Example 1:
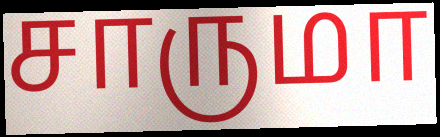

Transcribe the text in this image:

சாருமா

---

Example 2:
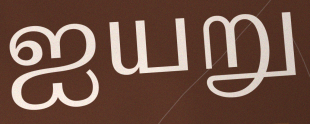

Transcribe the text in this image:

ஐயறு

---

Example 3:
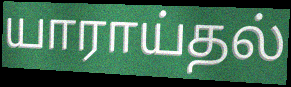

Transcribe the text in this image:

யாராய்தல்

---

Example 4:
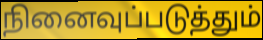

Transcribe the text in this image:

நினைவுப்படுத்தும்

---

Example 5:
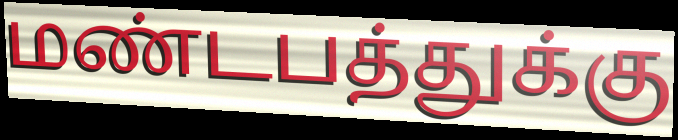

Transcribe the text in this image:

மண்டபத்துக்கு